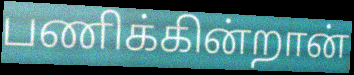
பணிக்கின்றான்